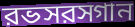
রভসরসগান